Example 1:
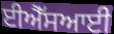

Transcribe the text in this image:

ਈਐੱਸਆਈ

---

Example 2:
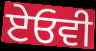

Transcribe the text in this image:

ਏਓਵੀ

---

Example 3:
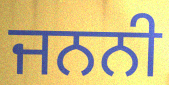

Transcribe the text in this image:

ਜਨਨੀ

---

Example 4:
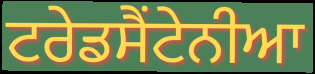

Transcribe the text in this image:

ਟਰੇਡਸੈਂਟੇਨੀਆ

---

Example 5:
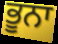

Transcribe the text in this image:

ਭੂਨਾ